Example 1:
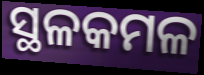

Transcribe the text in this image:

ସ୍ଥଳକମଳ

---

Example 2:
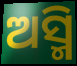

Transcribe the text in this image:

ଅସ୍ମି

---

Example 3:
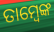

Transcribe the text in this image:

ତାମ୍ବେଙ୍କ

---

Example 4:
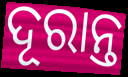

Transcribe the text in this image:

ଦୂରାନ୍ତ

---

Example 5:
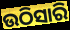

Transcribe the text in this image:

ଉଠିସାରି